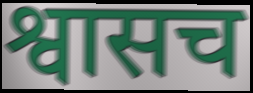
श्वासच